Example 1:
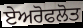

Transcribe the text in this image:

ਏਅਰੋਫਲੋਤ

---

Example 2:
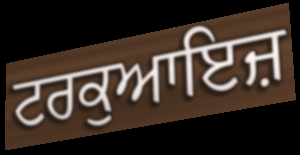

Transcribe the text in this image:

ਟਰਕੁਆਇਜ਼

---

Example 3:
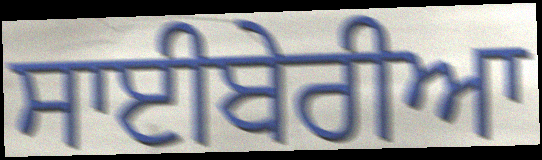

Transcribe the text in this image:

ਸਾਈਬੇਰੀਆ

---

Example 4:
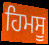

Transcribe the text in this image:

ਹਿਮਸੂ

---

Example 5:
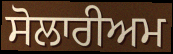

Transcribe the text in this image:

ਸੋਲਾਰੀਅਮ